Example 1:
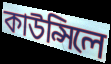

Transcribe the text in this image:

কাউন্সিলে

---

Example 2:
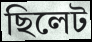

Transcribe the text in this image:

ছিলেট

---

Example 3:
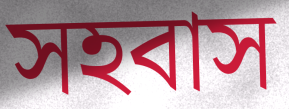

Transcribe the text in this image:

সহবাস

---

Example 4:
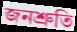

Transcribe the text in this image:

জনশ্ৰুতি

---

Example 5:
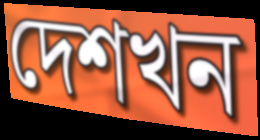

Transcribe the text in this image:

দেশখন